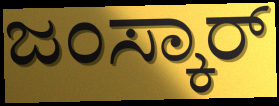
ಜಂಸ್ಕಾರ್